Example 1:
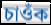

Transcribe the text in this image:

চাওঁক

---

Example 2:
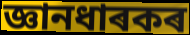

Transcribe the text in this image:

জ্ঞানধাৰকৰ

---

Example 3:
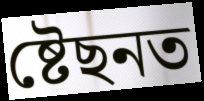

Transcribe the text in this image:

ষ্টেছনত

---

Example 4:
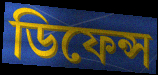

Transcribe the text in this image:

ডিফেন্স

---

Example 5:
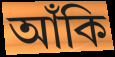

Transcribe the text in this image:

আঁকি